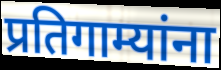
प्रतिगाम्यांना